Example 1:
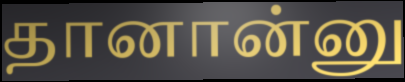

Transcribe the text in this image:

தானான்னு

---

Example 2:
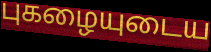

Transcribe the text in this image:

புகழையுடைய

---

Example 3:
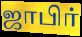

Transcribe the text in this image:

ஜாபிர்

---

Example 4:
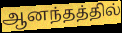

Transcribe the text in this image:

ஆனந்தத்தில்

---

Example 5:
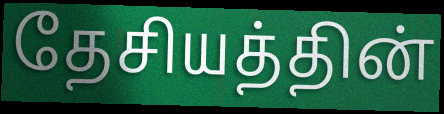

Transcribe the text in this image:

தேசியத்தின்